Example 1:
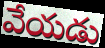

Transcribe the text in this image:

వేయడు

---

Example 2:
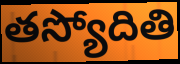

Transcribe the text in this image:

తస్యోదితి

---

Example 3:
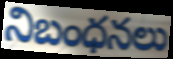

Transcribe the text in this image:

నిబంధనలు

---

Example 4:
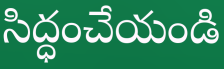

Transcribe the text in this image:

సిద్ధంచేయండి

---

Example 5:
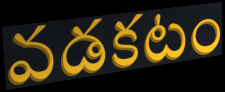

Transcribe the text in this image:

వడకటం